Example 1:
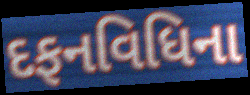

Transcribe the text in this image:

દફનવિધિના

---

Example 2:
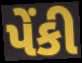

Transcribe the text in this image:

પેંકી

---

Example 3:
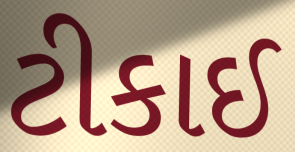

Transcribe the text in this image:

ટીકાઈ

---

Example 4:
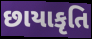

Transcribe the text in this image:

છાયાકૃતિ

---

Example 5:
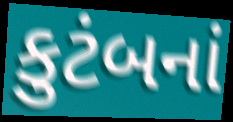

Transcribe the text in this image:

કુટંબનાં